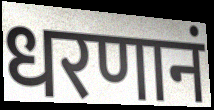
धरणानं